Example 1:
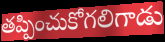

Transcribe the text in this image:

తప్పించుకోగలిగాడు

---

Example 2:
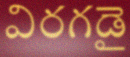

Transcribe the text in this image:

విరగడై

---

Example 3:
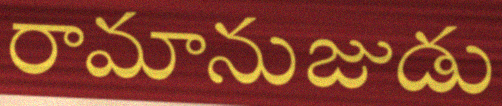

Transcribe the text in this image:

రామానుజుడు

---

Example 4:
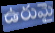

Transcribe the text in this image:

ఉరుమై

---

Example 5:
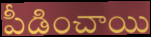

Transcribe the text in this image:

పీడించాయి